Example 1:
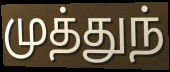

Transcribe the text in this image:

முத்துந்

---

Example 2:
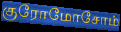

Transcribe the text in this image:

குரோமோசோம்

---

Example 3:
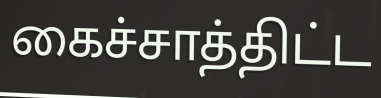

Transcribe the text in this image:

கைச்சாத்திட்ட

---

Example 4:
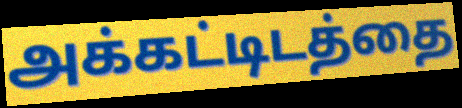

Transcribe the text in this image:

அக்கட்டிடத்தை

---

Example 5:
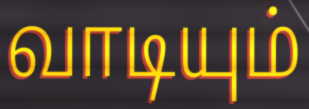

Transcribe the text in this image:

வாடியும்